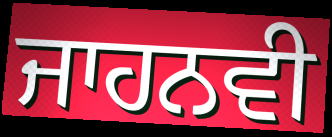
ਜਾਹਨਵੀ